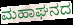
ಮಹಾಘನದ